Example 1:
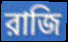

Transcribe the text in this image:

রাজি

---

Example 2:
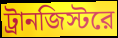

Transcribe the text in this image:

ট্রানজিস্টরে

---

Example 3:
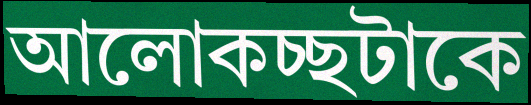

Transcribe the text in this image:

আলোকচ্ছটাকে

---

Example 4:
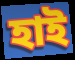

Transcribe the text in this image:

হাই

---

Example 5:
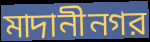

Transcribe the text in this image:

মাদানীনগর